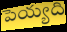
పెయ్యది